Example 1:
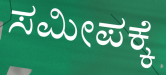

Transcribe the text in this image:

ಸಮೀಪಕ್ಕೆ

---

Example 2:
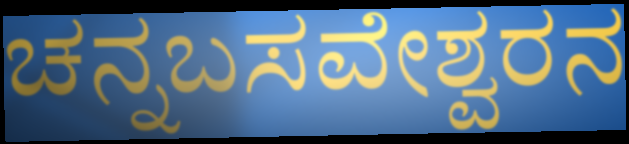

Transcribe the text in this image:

ಚನ್ನಬಸವೇಶ್ವರನ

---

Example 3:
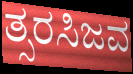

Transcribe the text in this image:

ತ್ಸರಸಿಜವ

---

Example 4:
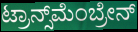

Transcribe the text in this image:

ಟ್ರಾನ್ಸ್‌ಮೆಂಬ್ರೇನ್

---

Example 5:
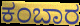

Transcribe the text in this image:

ಕಂಬಾರ